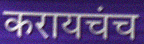
करायचंच